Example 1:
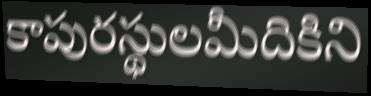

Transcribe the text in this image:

కాపురస్థులమీదికిని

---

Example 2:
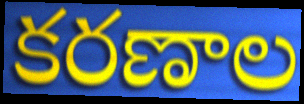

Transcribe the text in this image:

కరణాల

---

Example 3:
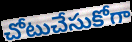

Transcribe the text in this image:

చోటుచేసుకోగా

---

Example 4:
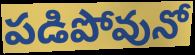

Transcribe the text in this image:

పడిపోవునో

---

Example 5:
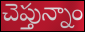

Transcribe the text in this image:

చెప్తున్నాం